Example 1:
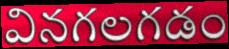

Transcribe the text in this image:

వినగలగడం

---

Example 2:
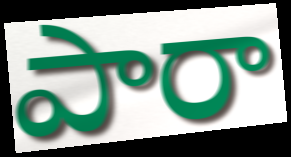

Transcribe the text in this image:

పారా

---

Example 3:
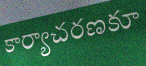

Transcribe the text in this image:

కార్యాచరణకూ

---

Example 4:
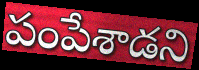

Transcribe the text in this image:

పంపేశాడని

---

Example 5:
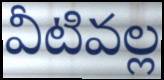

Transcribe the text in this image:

వీటివల్ల